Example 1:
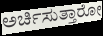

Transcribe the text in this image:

ಅರ್ಚಿಸುತ್ತಾರೋ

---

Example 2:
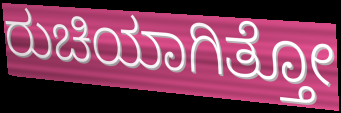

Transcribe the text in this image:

ರುಚಿಯಾಗಿತ್ತೋ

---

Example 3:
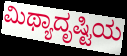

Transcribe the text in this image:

ಮಿಥ್ಯಾದೃಷ್ಟಿಯ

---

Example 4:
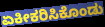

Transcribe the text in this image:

ಏಕೀಕರಿಸಿಕೊಂಡು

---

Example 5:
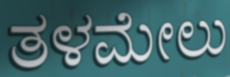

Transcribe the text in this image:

ತಳಮೇಲು